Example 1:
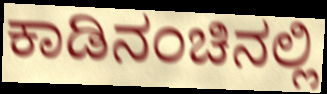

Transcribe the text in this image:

ಕಾಡಿನಂಚಿನಲ್ಲಿ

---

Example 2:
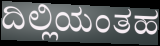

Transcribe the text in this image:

ದಿಲ್ಲಿಯಂತಹ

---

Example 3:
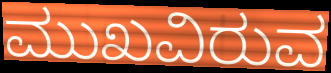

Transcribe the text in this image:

ಮುಖವಿರುವ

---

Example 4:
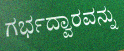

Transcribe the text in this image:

ಗರ್ಭದ್ವಾರವನ್ನು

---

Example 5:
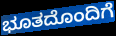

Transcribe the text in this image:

ಭೂತದೊಂದಿಗೆ